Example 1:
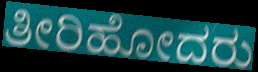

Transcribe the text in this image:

ತೀರಿಹೋದರು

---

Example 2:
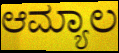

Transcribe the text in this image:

ಆಮ್ಯಾಲ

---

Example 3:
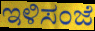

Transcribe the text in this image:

ಇಳಿಸಂಜೆ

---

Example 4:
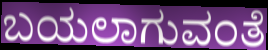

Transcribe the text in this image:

ಬಯಲಾಗುವಂತೆ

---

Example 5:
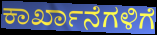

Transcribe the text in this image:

ಕಾರ್ಖಾನೆಗಳಿಗೆ